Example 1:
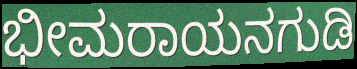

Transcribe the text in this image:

ಭೀಮರಾಯನಗುಡಿ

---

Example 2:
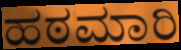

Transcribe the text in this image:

ಹಠಮಾರಿ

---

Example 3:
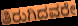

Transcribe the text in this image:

ತಿರುಗಿದವರೇ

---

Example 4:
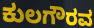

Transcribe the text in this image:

ಕುಲಗೌರವ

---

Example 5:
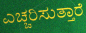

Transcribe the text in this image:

ಎಚ್ಚರಿಸುತ್ತಾರೆ